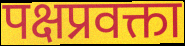
पक्षप्रवक्ता